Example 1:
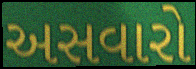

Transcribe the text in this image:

અસવારો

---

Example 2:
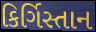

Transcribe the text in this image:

કિર્ગિસ્તાન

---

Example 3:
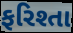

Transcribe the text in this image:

ફરિશ્તા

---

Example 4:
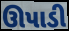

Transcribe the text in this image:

ઊપાડી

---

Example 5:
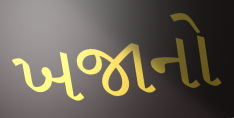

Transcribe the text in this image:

ખજાનો